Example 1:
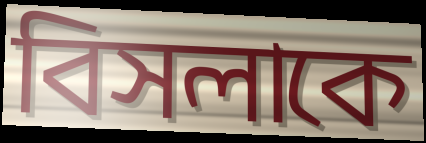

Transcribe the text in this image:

বিসলাকে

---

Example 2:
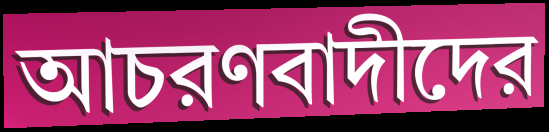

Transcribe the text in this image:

আচরণবাদীদের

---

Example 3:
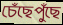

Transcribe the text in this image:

চেঁছেপুঁছে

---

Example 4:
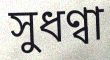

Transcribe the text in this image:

সুধণ্বা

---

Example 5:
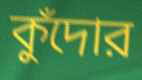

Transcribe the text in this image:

কুঁদোর